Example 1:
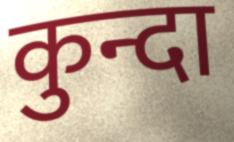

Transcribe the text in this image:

कुन्दा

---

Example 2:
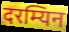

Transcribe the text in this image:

दरम्यिन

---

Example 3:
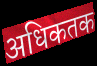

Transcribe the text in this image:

अधिकतक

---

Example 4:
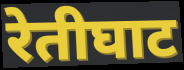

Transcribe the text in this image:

रेतीघाट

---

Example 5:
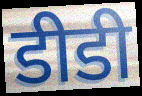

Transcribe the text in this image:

डीडी